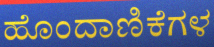
ಹೊಂದಾಣಿಕೆಗಳ